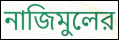
নাজিমুলের